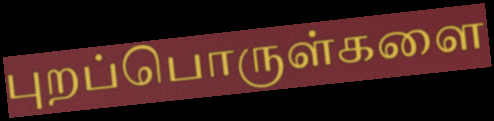
புறப்பொருள்களை